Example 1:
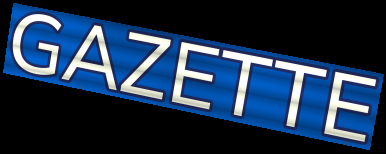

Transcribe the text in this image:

GAZETTE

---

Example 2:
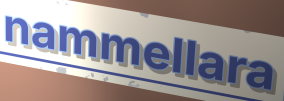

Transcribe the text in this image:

nammellara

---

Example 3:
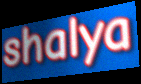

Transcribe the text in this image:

shalya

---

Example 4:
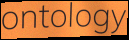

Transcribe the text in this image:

ontology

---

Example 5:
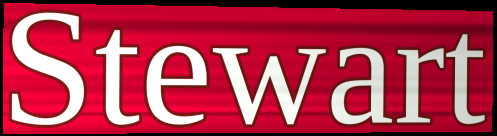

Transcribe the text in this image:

Stewart